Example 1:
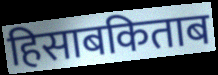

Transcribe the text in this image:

हिसाबकिताब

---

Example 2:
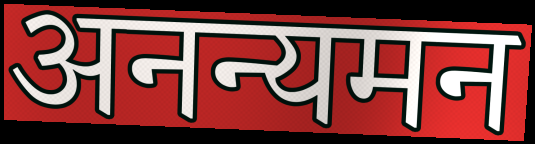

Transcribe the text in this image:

अनन्यमन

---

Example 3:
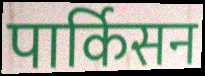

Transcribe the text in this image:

पार्किसन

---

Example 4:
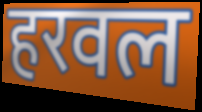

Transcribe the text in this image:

हरवल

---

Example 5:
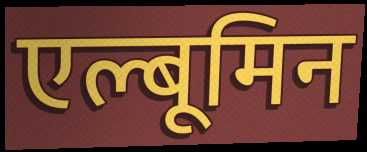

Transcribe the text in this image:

एल्बूमिन